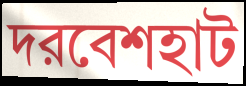
দরবেশহাট